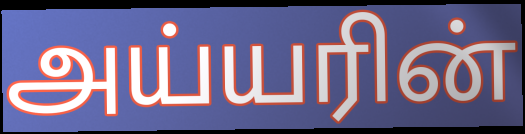
அய்யரின்